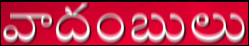
వాదంబులు